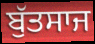
ਬੁੱਤਸਾਜ